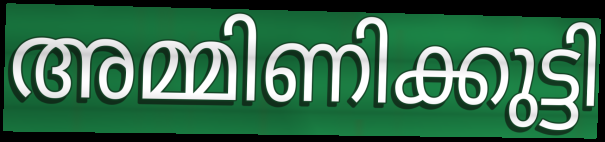
അമ്മിണിക്കുട്ടി